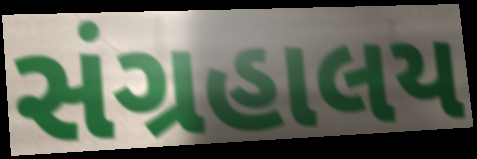
સંગ્રહાલય